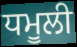
ਧਮੂਲੀ